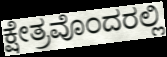
ಕ್ಷೇತ್ರವೊಂದರಲ್ಲಿ